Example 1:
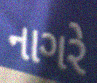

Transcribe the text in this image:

નાગરે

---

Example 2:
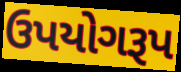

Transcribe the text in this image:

ઉપયોગરૂપ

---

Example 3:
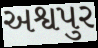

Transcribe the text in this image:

અશ્વપુર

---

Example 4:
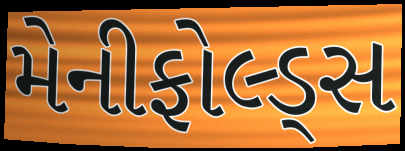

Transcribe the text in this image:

મેનીફોલ્ડ્સ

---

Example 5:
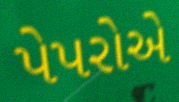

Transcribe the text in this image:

પેપરોએ